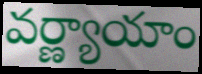
వర్ణ్యాయాం